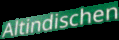
Altindischen